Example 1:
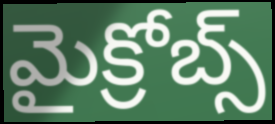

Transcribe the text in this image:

మైక్రోబ్స్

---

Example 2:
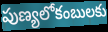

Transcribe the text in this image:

పుణ్యలోకంబులకు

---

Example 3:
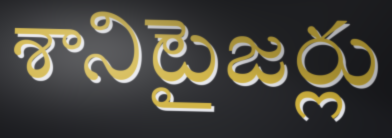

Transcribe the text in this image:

శానిటైజర్లు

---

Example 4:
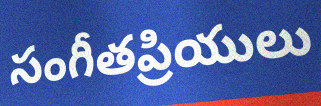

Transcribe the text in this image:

సంగీతప్రియులు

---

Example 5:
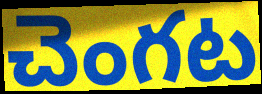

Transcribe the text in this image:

చెంగట